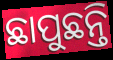
ଛାପୁଛନ୍ତି